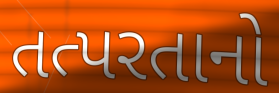
તત્પરતાનો